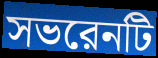
সভরেনটি